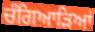
ਚੰਗਿਆੜਿਆਂ